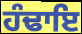
ਹੰਢਾਇ